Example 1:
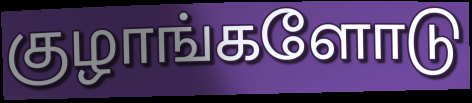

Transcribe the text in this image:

குழாங்களோடு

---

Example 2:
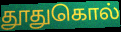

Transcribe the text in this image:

தூதுகொல்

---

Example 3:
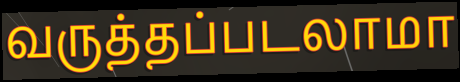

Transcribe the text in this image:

வருத்தப்படலாமா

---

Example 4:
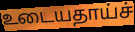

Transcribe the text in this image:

உடையதாய்ச்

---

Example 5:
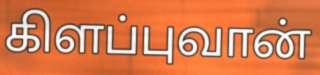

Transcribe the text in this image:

கிளப்புவான்